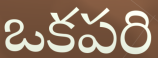
ఒకపరి